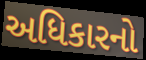
અધિકારનો